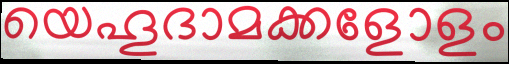
യെഹൂദാമക്കളോളം